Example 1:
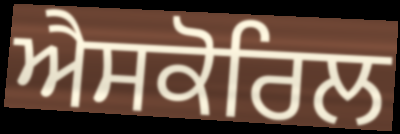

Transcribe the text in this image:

ਐਸਕੋਰਿਲ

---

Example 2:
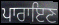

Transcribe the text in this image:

ਪਾਰਾਇਣ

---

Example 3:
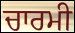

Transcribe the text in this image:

ਚਾਰਮੀ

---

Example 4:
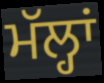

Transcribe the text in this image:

ਮੱਲ੍ਹਾਂ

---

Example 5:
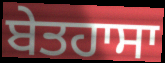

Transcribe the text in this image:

ਬੇਤਹਾਸਾ